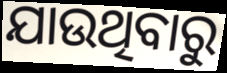
ଯାଉଥିବାରୁ